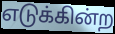
எடுக்கின்ற